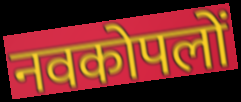
नवकोपलों